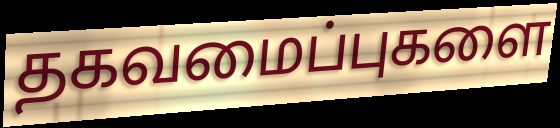
தகவமைப்புகளை